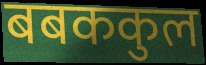
बबककुल